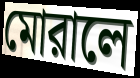
মোরালে